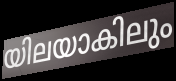
യിലയാകിലും